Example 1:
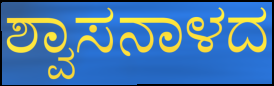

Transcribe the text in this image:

ಶ್ವಾಸನಾಳದ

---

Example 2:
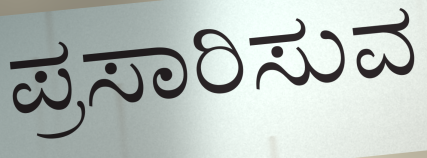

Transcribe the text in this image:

ಪ್ರಸಾರಿಸುವ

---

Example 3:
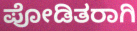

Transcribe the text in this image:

ಪೋಡಿತರಾಗಿ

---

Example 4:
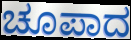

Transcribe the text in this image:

ಚೂಪಾದ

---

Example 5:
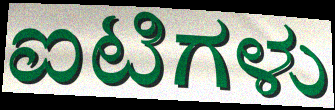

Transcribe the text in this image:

ಐಟಿಗಳು